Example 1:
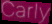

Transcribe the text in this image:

Carly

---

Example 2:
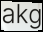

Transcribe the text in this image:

akg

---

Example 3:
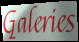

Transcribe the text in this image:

Galeries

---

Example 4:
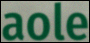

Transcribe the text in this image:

aole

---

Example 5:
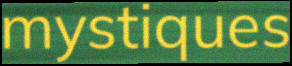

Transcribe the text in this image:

mystiques